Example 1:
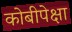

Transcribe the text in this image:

कोबीपेक्षा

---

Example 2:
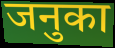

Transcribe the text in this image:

जनुका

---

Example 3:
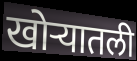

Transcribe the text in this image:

खोऱ्यातली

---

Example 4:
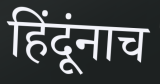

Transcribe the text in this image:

हिंदूंनाच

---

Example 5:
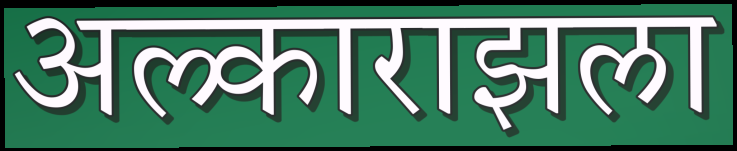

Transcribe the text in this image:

अल्काराझला